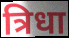
त्रिधा